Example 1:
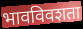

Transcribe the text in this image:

भावविवशता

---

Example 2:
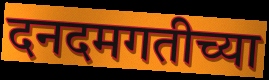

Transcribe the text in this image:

दनदमगतीच्या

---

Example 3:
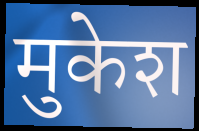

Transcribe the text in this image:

मुकेश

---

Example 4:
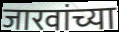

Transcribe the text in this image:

जारवांच्या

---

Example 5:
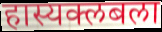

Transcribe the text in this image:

हास्यक्लबला